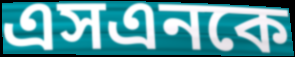
এসএনকে